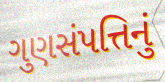
ગુણસંપત્તિનું